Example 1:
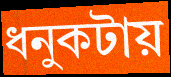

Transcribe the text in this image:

ধনুকটায়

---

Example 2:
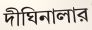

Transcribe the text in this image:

দীঘিনালার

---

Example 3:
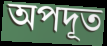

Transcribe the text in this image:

অপদূত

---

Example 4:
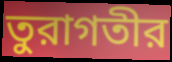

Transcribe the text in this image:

তুরাগতীর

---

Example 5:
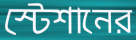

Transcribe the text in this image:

স্টেশানের